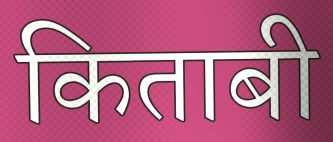
किताबी